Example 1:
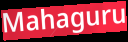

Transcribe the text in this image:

Mahaguru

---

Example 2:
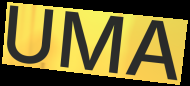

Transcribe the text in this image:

UMA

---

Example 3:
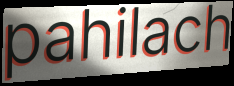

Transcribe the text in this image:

pahilach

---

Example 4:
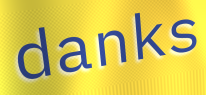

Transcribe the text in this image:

danks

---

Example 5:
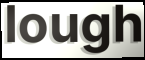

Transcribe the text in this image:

lough